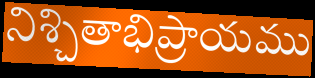
నిశ్చితాభిప్రాయము